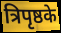
त्रिपृष्ठके